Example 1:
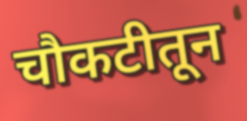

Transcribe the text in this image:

चौकटीतून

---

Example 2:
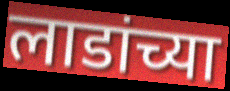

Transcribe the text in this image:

लाडांच्या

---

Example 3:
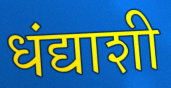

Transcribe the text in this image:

धंद्याशी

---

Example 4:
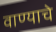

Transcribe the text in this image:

वाण्याचे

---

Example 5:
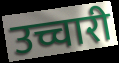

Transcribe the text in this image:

उच्चारी